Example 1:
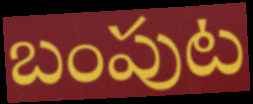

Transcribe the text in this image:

బంపుట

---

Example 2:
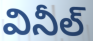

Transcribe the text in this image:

వినీల్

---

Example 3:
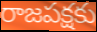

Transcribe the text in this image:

రాజపక్షకు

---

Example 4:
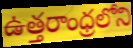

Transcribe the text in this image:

ఉత్తరాంధ్రలోని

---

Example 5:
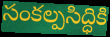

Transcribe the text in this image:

సంకల్పసిద్ధికి